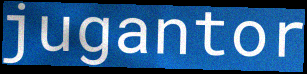
jugantor